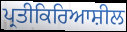
ਪ੍ਰਤੀਕਿਰਿਆਸ਼ੀਲ